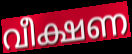
വീക്ഷണ